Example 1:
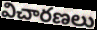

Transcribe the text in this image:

విచారణలు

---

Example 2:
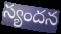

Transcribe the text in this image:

స్యందన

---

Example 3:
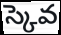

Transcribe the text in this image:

స్కెవ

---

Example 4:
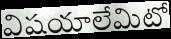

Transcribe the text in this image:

విషయాలేమిటో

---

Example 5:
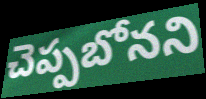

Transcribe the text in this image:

చెప్పబోనని